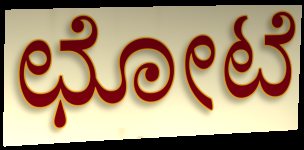
ಛೋಟೆ